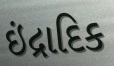
ઇંદ્રાદિક